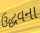
ઉદ્ધવના